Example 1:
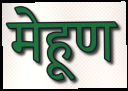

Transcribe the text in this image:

मेहूण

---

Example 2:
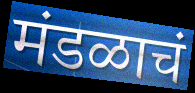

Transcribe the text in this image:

मंडळाचं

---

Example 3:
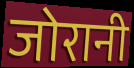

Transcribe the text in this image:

जोरानी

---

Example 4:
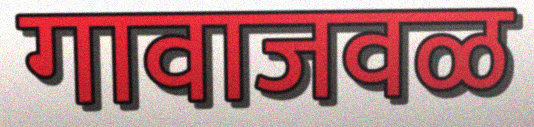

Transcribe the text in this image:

गावाजवळ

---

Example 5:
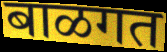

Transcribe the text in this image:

बाळगत